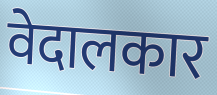
वेदालकार